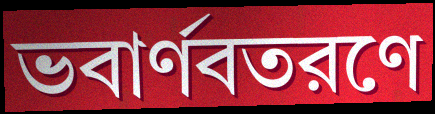
ভবার্ণবতরণে